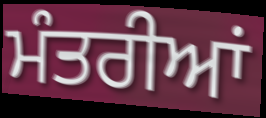
ਮੰਤਰੀਆਂ